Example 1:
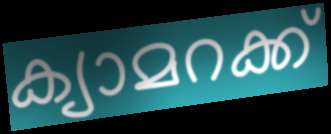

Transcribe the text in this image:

ക്യാമറക്ക്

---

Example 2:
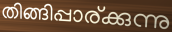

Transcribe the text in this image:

തിങ്ങിപ്പാര്ക്കുന്നു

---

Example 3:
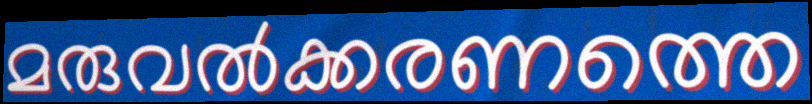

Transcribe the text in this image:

മരുവൽക്കരണത്തെ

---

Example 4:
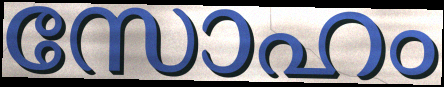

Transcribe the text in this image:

സോഹം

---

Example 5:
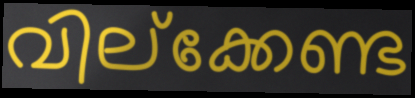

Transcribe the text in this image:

വില്ക്കേണ്ട